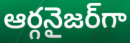
ఆర్గనైజర్‌గా